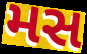
મસ